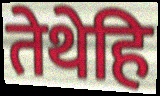
तेथेहि